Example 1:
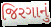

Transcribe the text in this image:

જિરગાનું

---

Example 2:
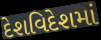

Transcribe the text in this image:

દેશવિદેશમાં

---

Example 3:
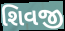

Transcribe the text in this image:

શિવજી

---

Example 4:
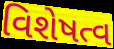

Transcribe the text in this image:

વિશેષત્વ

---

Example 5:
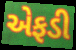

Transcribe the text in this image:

એફડી